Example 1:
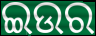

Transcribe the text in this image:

ଇଉର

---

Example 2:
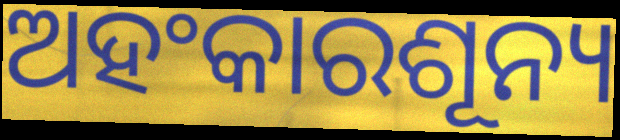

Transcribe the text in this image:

ଅହଂକାରଶୂନ୍ୟ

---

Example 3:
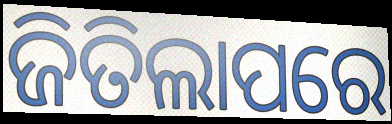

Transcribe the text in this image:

ଜିତିଲାପରେ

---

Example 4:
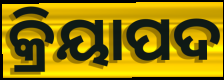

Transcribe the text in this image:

କ୍ରିୟାପଦ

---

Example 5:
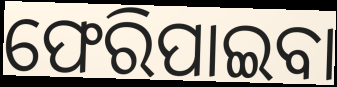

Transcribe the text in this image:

ଫେରିପାଇବା